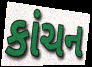
કાંચન